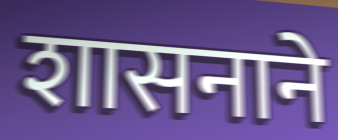
शासनाने